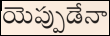
యెప్పుడేనా